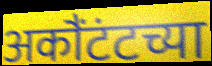
अकौंटंटच्या